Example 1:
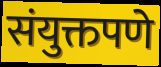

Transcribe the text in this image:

संयुक्तपणे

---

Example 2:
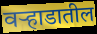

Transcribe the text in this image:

वऱ्हाडातील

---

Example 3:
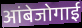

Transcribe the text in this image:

आंबेजोगाई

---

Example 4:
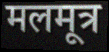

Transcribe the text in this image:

मलमूत्र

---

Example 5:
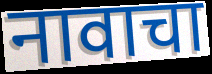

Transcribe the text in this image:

नावाचा